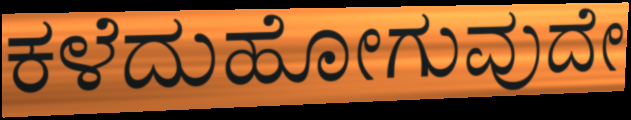
ಕಳೆದುಹೋಗುವುದೇ